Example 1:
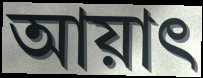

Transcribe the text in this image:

আয়াৎ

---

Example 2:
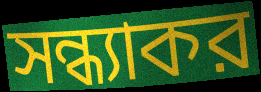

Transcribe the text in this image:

সন্ধ্যাকর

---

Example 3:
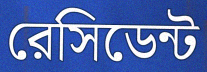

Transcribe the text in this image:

রেসিডেন্ট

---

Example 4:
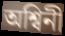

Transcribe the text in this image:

অশ্বিনী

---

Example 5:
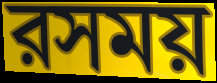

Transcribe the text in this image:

রসময়